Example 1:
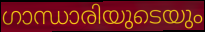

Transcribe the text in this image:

ഗാന്ധാരിയുടെയും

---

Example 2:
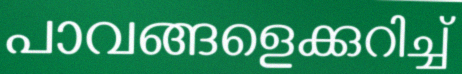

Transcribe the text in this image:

പാവങ്ങളെക്കുറിച്ച്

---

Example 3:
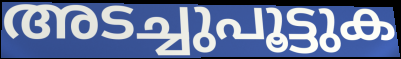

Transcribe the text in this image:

അടച്ചുപൂട്ടുക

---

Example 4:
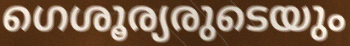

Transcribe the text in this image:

ഗെശൂര്യരുടെയും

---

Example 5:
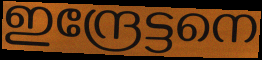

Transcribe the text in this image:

ഇന്ദ്രേട്ടനെ